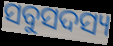
ସବୁସଦସ୍ୟ